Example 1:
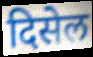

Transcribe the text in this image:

दिसेल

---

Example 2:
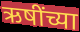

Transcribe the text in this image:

ऋषींच्या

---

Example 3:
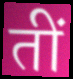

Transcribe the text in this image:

तीं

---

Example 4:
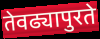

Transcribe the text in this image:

तेवढ्यापुरते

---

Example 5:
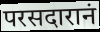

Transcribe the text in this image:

परसदारानं